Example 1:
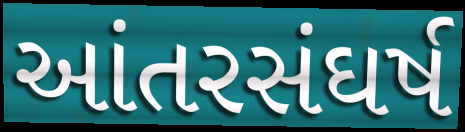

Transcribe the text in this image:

આંતરસંઘર્ષ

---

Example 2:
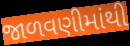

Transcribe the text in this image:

જાળવણીમાંથી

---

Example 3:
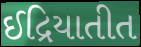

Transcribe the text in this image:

ઈદ્રિયાતીત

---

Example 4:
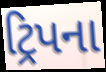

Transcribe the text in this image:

ટ્રિપના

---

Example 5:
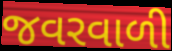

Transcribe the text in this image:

જવરવાળી